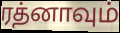
ரத்னாவும்